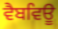
ਵੈਬਵਿਊ